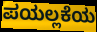
ಪಯಲ್ಲಕೆಯ